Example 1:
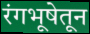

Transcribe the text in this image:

रंगभूषेतून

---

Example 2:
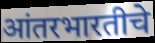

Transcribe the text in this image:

आंतरभारतीचे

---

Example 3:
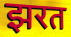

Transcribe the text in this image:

झरत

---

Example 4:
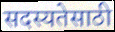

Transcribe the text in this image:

सदस्यतेसाठी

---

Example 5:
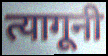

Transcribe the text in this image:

त्यागूनी